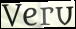
Veru